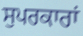
ਸੁਪਰਕਾਰਾਂ